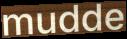
mudde